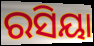
ରସିୟା